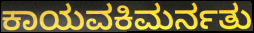
ಕಾಯವಕಿಮರ್ನತು